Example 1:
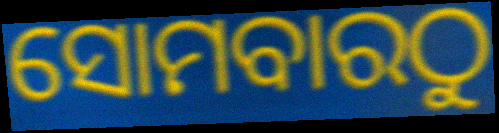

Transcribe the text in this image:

ସୋମବାରଠୁ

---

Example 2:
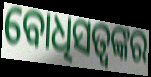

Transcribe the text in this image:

ବୋଧିସତ୍ୱଙ୍କର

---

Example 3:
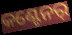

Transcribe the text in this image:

କଣ୍ଟେନର୍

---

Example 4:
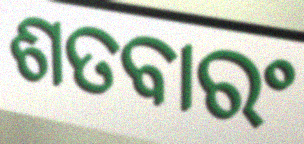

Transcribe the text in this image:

ଶତବାରଂ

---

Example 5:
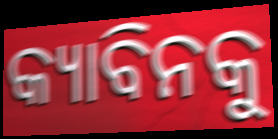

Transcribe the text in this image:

କ୍ୟାବିନକୁ